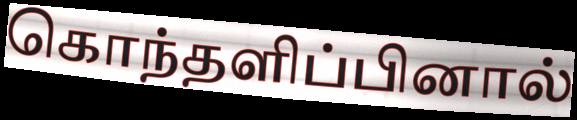
கொந்தளிப்பினால்